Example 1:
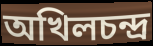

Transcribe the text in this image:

অখিলচন্দ্র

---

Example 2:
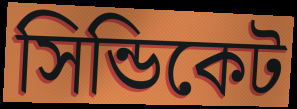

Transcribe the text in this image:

সিন্ডিকেট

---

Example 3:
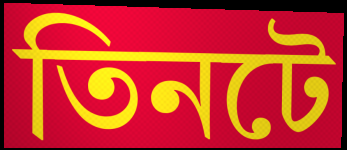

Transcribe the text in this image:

তিনটে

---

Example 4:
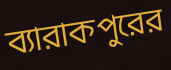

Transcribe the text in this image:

ব্যারাকপুরের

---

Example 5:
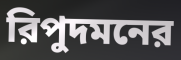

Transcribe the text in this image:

রিপুদমনের